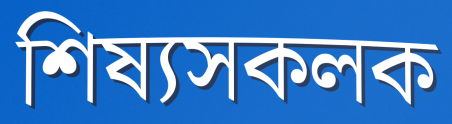
শিষ্যসকলক